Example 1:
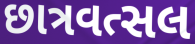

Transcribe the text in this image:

છાત્રવત્સલ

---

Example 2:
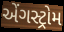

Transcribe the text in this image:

એંગસ્ટ્રોમ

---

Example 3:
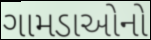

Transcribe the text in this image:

ગામડાઓનો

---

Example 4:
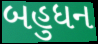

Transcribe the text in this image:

બહુધન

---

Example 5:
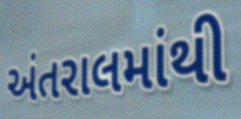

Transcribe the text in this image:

અંતરાલમાંથી